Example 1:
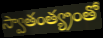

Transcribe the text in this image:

స్వాతంత్య్రంతో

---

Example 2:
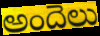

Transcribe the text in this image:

అందెలు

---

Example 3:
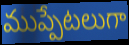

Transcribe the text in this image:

ముప్పేటలుగా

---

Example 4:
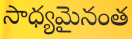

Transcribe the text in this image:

సాధ్యమైనంత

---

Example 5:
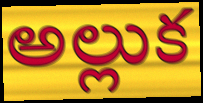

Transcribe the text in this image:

అల్లుక